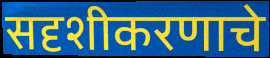
सदृशीकरणाचे